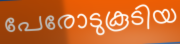
പേരോടുകൂടിയ